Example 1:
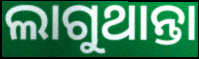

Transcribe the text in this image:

ଲାଗୁଥାନ୍ତା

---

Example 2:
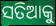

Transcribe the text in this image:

ସତିଆକୁ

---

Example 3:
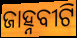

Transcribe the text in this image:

ଜାହ୍ନବୀଟି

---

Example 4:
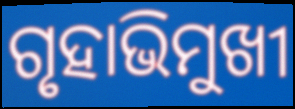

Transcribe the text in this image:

ଗୃହାଭିମୁଖୀ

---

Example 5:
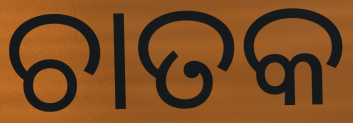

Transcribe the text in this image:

ଚାତକ